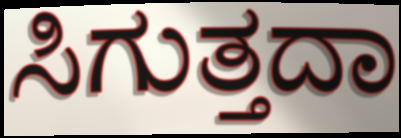
ಸಿಗುತ್ತದಾ